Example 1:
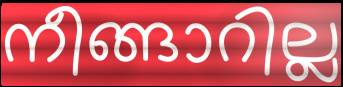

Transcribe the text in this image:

നീങ്ങാറില്ല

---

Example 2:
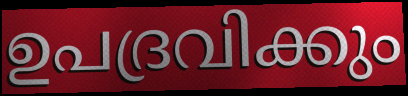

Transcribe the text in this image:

ഉപദ്രവിക്കും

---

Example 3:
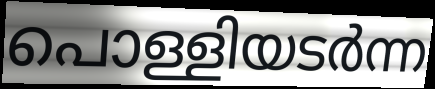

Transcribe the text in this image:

പൊള്ളിയടർന്ന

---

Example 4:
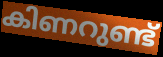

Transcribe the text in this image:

കിണറുണ്ട്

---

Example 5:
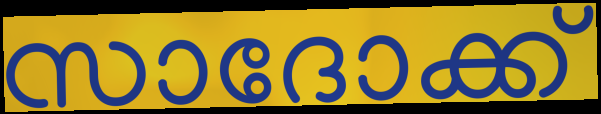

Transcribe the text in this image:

സാദോക്ക്